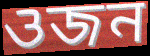
ওজন